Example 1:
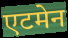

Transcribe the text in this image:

एटमेन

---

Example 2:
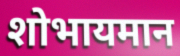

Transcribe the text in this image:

शोभायमान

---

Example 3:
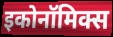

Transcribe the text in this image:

इकोनॉमिक्स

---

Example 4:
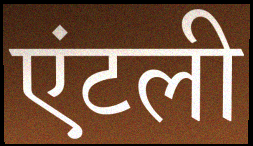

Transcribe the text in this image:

एंटली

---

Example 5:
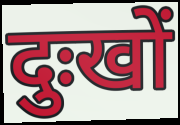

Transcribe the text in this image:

दुःखों